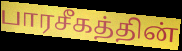
பாரசீகத்தின்